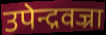
उपेन्द्रवज्रा